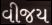
વીજય